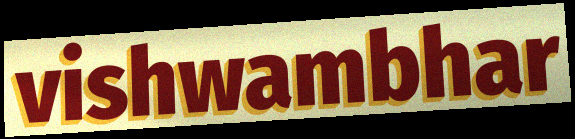
vishwambhar